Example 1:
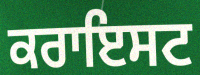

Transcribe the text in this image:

ਕਰਾਇਸਟ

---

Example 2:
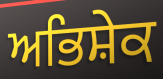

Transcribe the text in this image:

ਅਭਿਸ਼ੇਕ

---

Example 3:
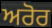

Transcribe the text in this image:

ਅਰੋਰ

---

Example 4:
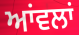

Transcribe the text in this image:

ਆਂਵਲਾਂ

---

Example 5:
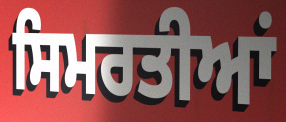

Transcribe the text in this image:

ਸਿਮਰਤੀਆਂ